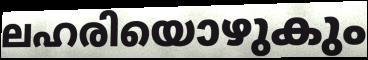
ലഹരിയൊഴുകും